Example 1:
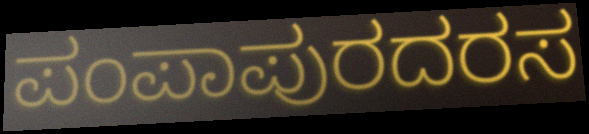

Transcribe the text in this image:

ಪಂಪಾಪುರದರಸ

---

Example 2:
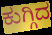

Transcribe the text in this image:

ಕುಗ್ಗಿದ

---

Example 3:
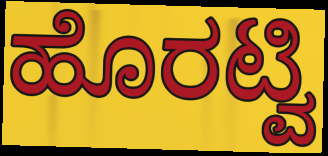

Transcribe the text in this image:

ಹೊರಟ್ವಿ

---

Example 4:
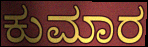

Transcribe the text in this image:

ಕುಮಾರ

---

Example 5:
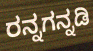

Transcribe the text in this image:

ರನ್ನಗನ್ನಡಿ